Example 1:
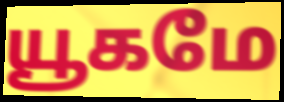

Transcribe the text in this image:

யூகமே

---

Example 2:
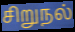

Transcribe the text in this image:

சிறுநல்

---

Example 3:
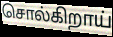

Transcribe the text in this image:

சொல்கிறாய்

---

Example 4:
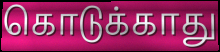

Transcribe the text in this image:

கொடுக்காது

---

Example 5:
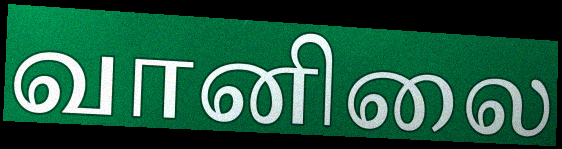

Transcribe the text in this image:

வானிலை